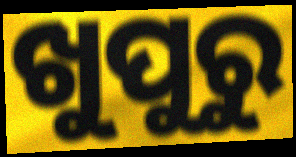
ଖୁପୁରୁ